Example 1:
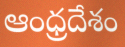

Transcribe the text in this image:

ఆంధ్రదేశం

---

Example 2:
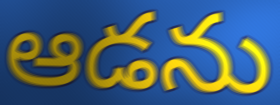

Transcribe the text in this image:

ఆడను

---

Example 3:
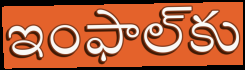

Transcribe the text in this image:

ఇంఫాల్‌కు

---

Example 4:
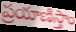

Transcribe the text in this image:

ప్రయాణిస్తాం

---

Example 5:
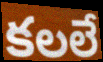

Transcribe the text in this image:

కలలే